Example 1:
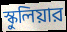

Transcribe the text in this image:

স্কুলিয়ার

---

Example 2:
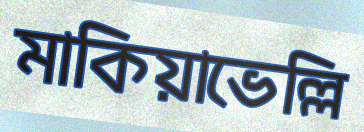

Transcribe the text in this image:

মাকিয়াভেল্লি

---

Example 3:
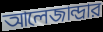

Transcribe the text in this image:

আলেজান্দ্রার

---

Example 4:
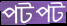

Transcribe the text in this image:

পটপট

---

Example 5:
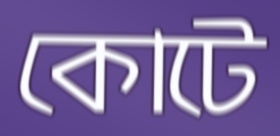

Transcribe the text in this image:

কোটে